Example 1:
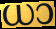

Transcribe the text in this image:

ധാ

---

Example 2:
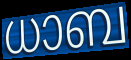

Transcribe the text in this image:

ധാബ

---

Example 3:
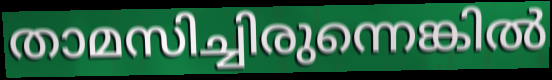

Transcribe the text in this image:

താമസിച്ചിരുന്നെങ്കിൽ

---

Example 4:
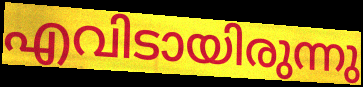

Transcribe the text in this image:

എവിടായിരുന്നു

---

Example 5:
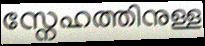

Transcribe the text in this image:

സ്നേഹത്തിനുള്ള